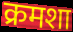
क्रमशा